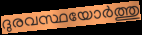
ദുരവസ്ഥയോർത്തു